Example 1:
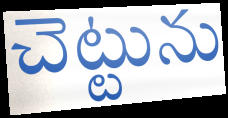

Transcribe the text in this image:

చెట్టును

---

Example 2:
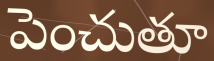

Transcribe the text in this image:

పెంచుతూ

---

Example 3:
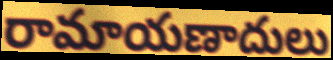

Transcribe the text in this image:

రామాయణాదులు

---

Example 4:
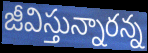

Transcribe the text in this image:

జీవిస్తున్నారన్న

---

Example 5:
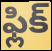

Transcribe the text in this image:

ఫ్లిక్